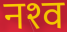
नश्व